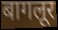
बागलूर